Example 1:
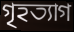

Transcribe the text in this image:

গৃহত্যাগ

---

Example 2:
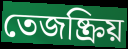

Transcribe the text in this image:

তেজষ্ক্রিয়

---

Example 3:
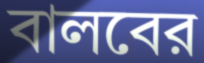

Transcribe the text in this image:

বালবের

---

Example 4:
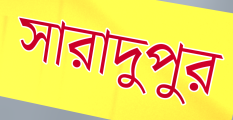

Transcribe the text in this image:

সারাদুপুর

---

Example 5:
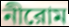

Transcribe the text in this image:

নীরোম